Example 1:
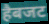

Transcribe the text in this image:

हैबजट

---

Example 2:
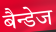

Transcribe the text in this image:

बैन्डेज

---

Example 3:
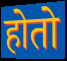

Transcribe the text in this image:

होतो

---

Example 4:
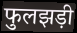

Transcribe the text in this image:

फुलझड़ी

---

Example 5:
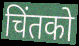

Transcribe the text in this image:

चिंतको